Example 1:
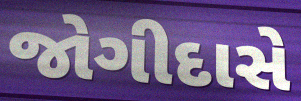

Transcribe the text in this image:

જોગીદાસે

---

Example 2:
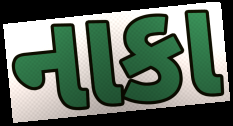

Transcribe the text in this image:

નાકા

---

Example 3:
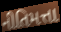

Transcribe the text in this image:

નીતિમત્તા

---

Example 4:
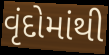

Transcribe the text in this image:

વૃંદોમાંથી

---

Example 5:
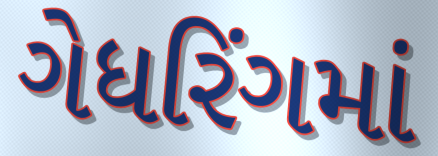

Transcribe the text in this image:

ગેધરિંગમાં